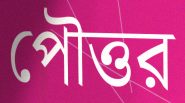
পৌত্তর